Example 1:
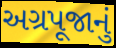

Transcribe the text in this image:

અગ્રપૂજાનું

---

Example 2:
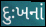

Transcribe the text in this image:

દુઃખનાં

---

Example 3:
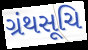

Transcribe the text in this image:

ગ્રંથસૂચિ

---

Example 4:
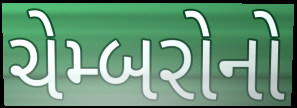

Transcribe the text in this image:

ચેમ્બરોનો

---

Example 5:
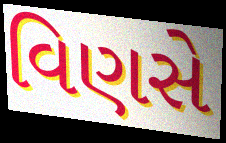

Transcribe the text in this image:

વિણસે